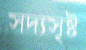
সদ্যসৃষ্ট